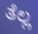
ತೆಲ್ಲ